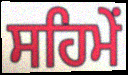
ਸਹਿਮੇਂ